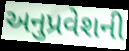
અનુપ્રવેશની